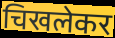
चिखलेकर